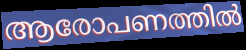
ആരോപണത്തിൽ